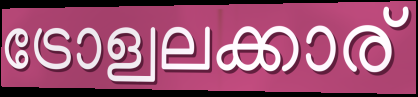
ട്രോള്വലക്കാര്